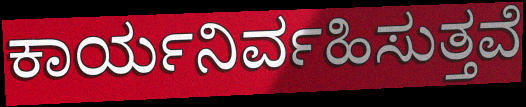
ಕಾರ್ಯನಿರ್ವಹಿಸುತ್ತವೆ